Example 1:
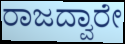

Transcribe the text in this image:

ರಾಜದ್ವಾರೇ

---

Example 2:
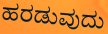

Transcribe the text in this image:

ಹರಡುವುದು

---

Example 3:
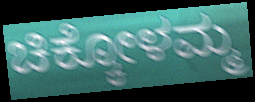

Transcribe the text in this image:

ಚಿಕ್ಕೋಳಮ್ಮ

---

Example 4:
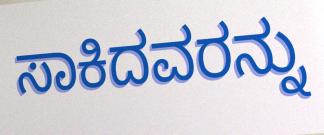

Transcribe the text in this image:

ಸಾಕಿದವರನ್ನು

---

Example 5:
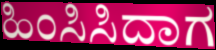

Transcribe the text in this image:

ಹಿಂಸಿಸಿದಾಗ